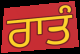
ਰਾਤੰ